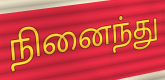
நினைந்து